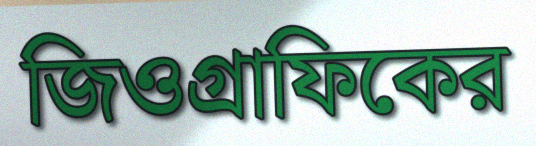
জিওগ্রাফিকের